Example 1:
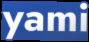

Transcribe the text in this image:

yami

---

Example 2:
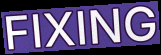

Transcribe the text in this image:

FIXING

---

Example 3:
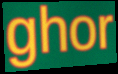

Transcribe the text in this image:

ghor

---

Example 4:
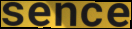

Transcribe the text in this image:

sence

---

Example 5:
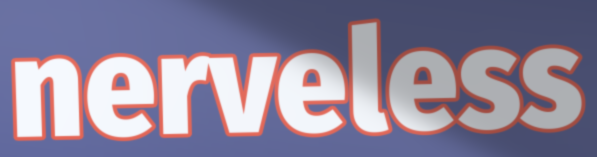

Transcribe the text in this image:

nerveless